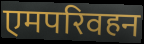
एमपरिवहन